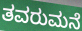
ತವರುಮನೆ